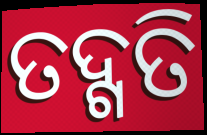
ତଦ୍ଗତି